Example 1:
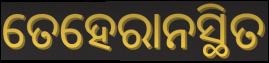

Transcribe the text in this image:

ତେହେରାନସ୍ଥିତ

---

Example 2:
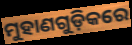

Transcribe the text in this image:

ମୁହାଣଗୁଡ଼ିକରେ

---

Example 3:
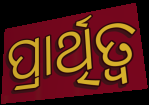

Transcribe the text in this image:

ପ୍ରାର୍ଥିତ୍ୱ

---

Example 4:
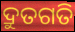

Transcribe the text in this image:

ଦ୍ରୁତଗତି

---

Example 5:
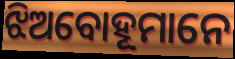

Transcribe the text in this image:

ଝିଅବୋହୂମାନେ